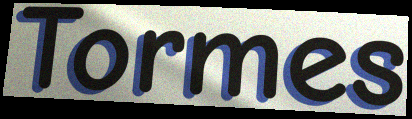
Tormes